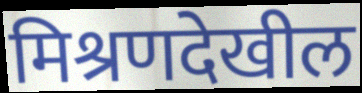
मिश्रणदेखील